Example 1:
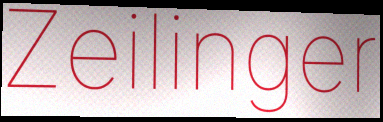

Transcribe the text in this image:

Zeilinger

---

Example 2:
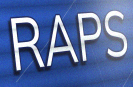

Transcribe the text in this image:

RAPS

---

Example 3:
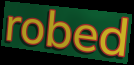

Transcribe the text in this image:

robed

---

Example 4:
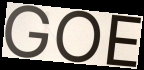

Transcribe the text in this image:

GOE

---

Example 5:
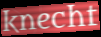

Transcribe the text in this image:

knecht